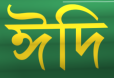
ঈদি